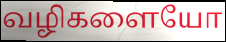
வழிகளையோ